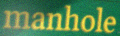
manhole